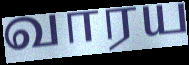
வாரய